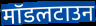
मॉडलटाउन